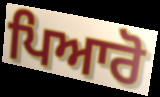
ਪਿਆਰੋ